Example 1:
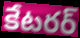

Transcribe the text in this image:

కేటరర్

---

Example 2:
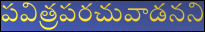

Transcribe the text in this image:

పవిత్రపరచువాడనని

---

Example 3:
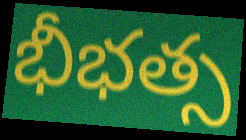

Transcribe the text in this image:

భీభత్స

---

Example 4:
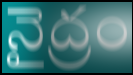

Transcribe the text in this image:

నైద్రం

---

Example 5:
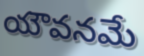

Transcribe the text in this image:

యౌవనమే